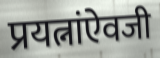
प्रयत्नांऐवजी